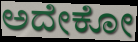
ಅದೇಕೋ